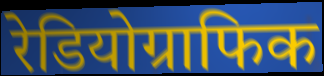
रेडियोग्राफिक